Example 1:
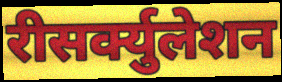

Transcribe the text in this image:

रीसर्क्युलेशन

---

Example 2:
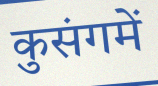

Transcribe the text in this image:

कुसंगमें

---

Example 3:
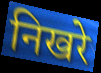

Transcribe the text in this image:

निखरे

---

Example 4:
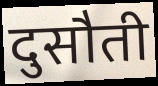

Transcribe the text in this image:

दुसौती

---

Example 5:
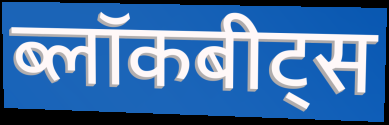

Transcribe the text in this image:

ब्लॉकबीट्स